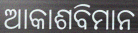
ଆକାଶବିମାନ